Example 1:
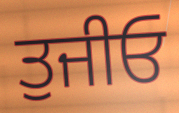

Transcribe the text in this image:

ਤੁਜੀਓ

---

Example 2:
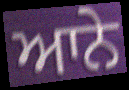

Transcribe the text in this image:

ਆਨੇ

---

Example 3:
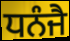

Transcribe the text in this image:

ਧਨੰਜੈ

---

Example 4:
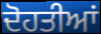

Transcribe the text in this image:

ਦੋਹਤੀਆਂ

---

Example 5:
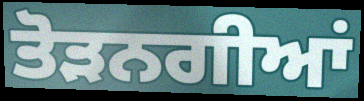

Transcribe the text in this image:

ਤੋੜਨਗੀਆਂ